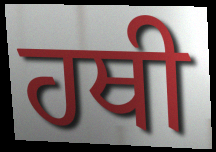
ਹਥੀ